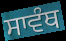
ਸਾਵੰਥ